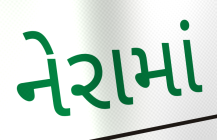
નેરામાં